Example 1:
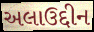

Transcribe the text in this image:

અલાઉદ્દીન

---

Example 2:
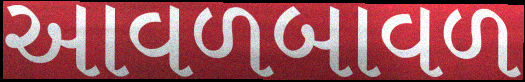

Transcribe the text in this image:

આવળબાવળ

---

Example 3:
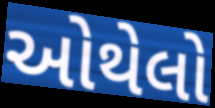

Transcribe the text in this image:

ઓથેલો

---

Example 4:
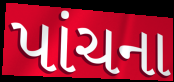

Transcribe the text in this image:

પાંચના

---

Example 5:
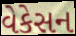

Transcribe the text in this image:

વેકેસન